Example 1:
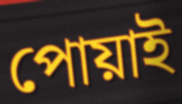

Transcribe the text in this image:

পোয়াই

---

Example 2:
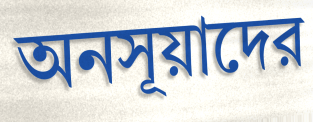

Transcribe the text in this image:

অনসূয়াদের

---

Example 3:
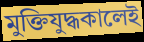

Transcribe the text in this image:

মুক্তিযুদ্ধকালেই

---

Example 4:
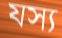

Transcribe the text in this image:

যস্য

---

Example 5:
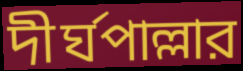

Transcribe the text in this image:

দীর্ঘপাল্লার